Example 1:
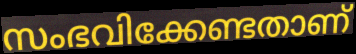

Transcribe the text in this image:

സംഭവിക്കേണ്ടതാണ്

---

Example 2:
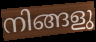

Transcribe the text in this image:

നിങ്ങളു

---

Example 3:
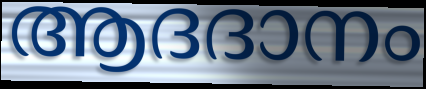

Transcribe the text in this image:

ആദദാനം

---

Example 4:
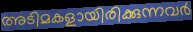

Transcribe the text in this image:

അടിമകളായിരിക്കുന്നവർ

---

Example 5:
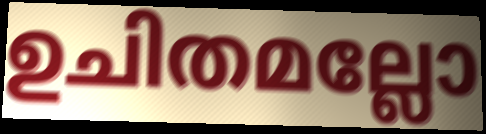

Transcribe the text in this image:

ഉചിതമല്ലോ